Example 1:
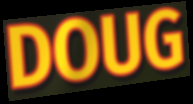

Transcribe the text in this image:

DOUG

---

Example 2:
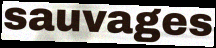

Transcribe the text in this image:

sauvages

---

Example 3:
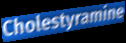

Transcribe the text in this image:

Cholestyramine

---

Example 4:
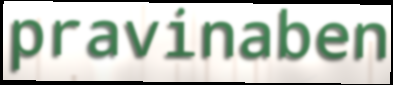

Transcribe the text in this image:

pravinaben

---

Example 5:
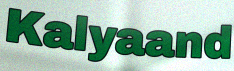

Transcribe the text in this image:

Kalyaand